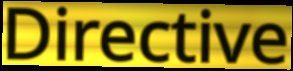
Directive